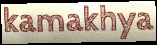
kamakhya